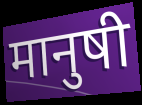
मानुषी